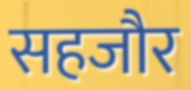
सहजौर